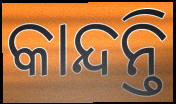
କାନ୍ଦନ୍ତି